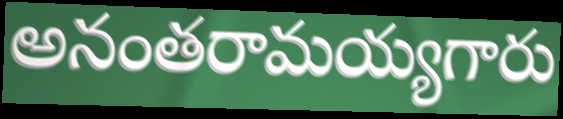
అనంతరామయ్యగారు